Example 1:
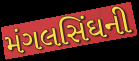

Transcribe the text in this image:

મંગલસિંઘની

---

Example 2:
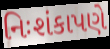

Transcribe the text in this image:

નિઃશંકાપણે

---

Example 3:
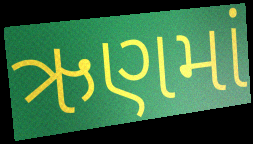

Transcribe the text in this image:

ઋણમાં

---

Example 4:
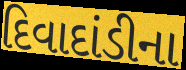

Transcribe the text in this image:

દિવાદાંડીના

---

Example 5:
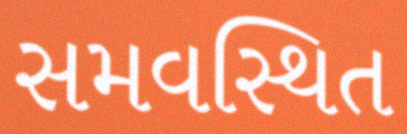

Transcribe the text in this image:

સમવસ્થિત